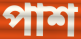
পাশ